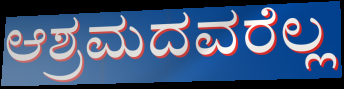
ಆಶ್ರಮದವರೆಲ್ಲ